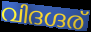
വിദഗ്ദര്